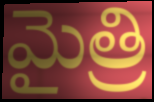
మైత్రి